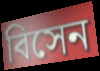
বিসেন